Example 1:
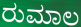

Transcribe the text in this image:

ರುಮಾಲ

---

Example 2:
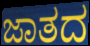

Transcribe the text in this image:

ಜಾತದ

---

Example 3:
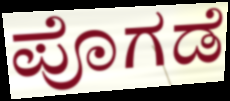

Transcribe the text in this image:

ಪೊಗಡೆ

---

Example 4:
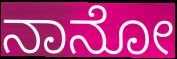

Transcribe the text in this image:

ನಾನೋ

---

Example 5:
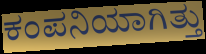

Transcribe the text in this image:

ಕಂಪನಿಯಾಗಿತ್ತು